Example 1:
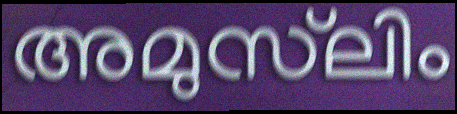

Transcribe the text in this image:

അമുസ്‌ലിം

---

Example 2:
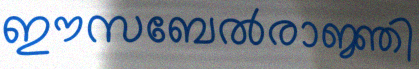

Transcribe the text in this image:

ഈസബേൽരാജ്ഞി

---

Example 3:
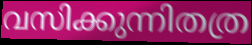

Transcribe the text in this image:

വസിക്കുന്നിതത്ര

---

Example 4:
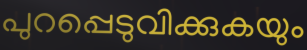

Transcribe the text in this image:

പുറപ്പെടുവിക്കുകയും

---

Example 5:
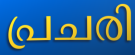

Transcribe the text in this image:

പ്രചരി